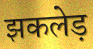
झकलेड़